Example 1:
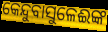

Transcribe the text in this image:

କେନ୍ଦୁବାସୁଳେଈଙ୍କ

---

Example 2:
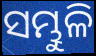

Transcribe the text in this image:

ସମ୍ଭୁଳି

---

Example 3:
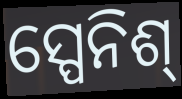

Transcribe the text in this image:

ସ୍ପେନିଶ୍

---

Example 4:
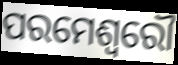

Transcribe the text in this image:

ପରମେଶ୍ଵରୌ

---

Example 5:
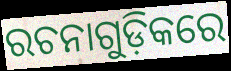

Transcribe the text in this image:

ରଚନାଗୁଡ଼ିକରେ